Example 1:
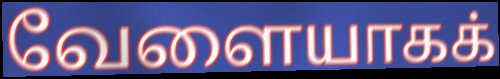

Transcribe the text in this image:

வேளையாகக்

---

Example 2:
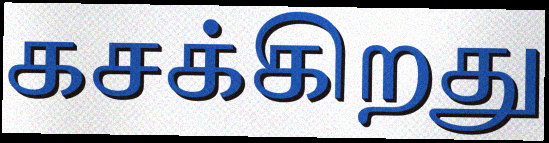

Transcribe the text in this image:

கசக்கிறது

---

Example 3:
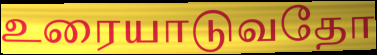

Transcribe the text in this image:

உரையாடுவதோ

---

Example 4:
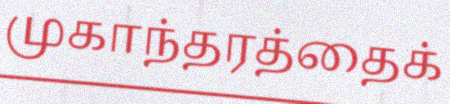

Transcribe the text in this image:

முகாந்தரத்தைக்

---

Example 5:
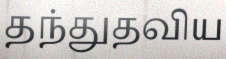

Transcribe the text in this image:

தந்துதவிய